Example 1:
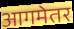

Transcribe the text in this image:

आगमेतर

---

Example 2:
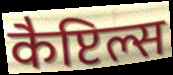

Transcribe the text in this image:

कैप्टिल्स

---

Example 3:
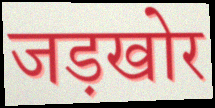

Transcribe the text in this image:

जड़खोर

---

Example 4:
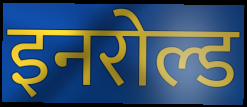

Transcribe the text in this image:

इनरोल्ड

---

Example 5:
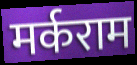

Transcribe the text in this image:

मर्कराम